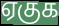
ஏகுக